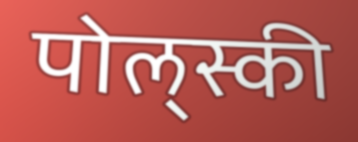
पोल्स्की